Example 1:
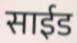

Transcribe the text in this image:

साईड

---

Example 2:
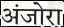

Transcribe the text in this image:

अंजोरा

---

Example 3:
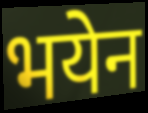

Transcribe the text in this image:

भयेन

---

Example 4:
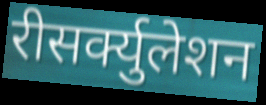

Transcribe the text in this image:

रीसर्क्युलेशन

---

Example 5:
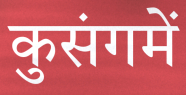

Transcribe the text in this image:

कुसंगमें